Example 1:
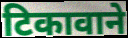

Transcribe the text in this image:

टिकावाने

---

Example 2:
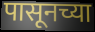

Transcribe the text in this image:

पासूनच्या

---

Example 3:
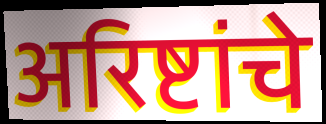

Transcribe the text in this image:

अरिष्टांचे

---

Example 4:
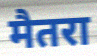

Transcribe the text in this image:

मैतरा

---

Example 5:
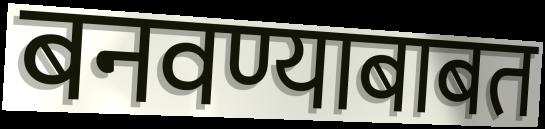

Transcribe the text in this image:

बनवण्याबाबत